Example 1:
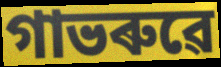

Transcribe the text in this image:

গাভৰুৱে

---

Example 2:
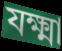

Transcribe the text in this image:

যক্ষ্মা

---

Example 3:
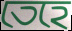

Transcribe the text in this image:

তেহে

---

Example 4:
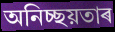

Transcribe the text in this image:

অনিচ্ছয়তাৰ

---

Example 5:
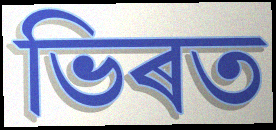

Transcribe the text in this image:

ভিৰত